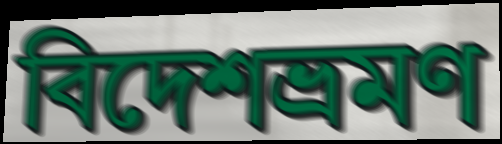
বিদেশভ্রমণ